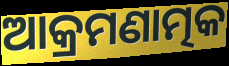
ଆକ୍ରମଣାତ୍ମକ